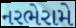
નરભેરામે